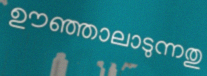
ഊഞ്ഞാലാടുന്നതു